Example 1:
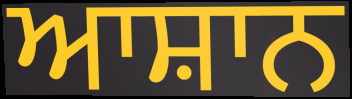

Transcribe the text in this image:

ਆਸ਼ਾਨ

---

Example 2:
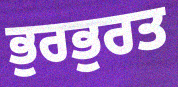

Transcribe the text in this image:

ਭੁਰਭੁਰਤ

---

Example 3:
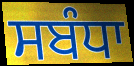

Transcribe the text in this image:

ਸਬੰਧਾ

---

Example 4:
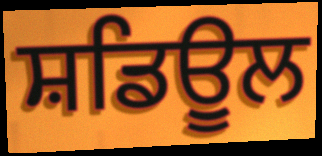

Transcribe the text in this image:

ਸ਼ਡਿਉੂਲ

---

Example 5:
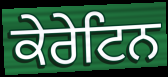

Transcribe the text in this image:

ਕੇਰੇਟਿਨ